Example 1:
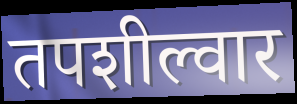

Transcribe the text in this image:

तपशील्वार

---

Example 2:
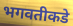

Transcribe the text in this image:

भगवतीकडे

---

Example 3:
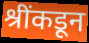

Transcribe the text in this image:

श्रींकडून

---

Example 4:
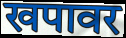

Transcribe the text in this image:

खपावर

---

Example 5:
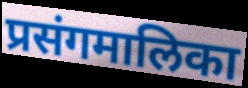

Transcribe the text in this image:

प्रसंगमालिका